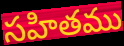
సహితము